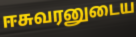
ஈசுவரனுடைய